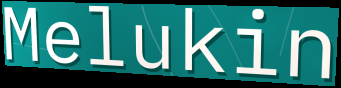
Melukin